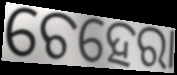
ଚେହେରା